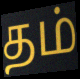
தம்